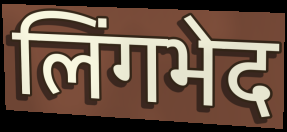
लिंगभेद